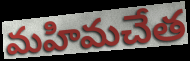
మహిమచేత